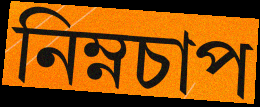
নিম্নচাপ